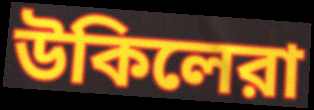
উকিলেরা